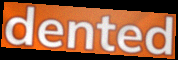
dented